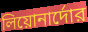
লিয়োনার্দোর